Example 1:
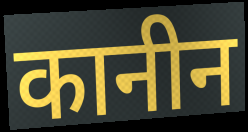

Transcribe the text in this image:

कानीन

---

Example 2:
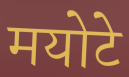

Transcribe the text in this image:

मयोटे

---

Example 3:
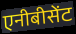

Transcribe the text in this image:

एनीबीसेंट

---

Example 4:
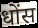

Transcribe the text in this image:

धोंस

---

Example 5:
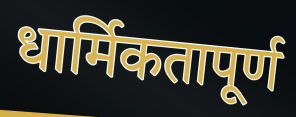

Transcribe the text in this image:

धार्मिकतापूर्ण